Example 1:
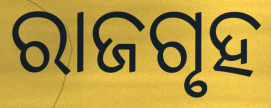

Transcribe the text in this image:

ରାଜଗୃହ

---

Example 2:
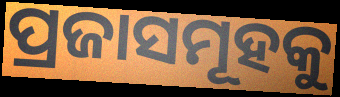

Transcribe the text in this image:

ପ୍ରଜାସମୂହକୁ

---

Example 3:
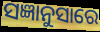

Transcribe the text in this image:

ସଜ୍ଞାନୁସାରେ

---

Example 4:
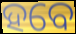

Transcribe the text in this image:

ହବେ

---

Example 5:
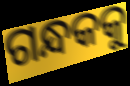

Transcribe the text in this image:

ଗନ୍ଧକକୁ